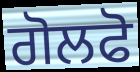
ਗੋਲਫੋ